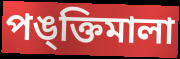
পঙ্ক্তিমালা